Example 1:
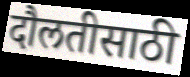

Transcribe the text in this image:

दौलतीसाठी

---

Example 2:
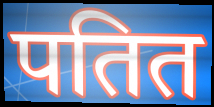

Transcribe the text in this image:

पतित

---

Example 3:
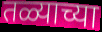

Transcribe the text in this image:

तळ्याच्या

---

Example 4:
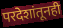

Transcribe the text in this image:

परदेशांतूनही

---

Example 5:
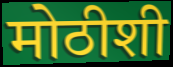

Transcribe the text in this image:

मोठीशी